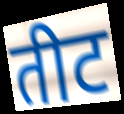
तीट